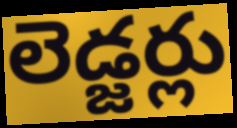
లెడ్జర్లు